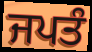
ਜਪਤੰ